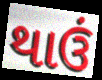
થાઉં